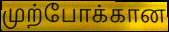
முற்போக்கான